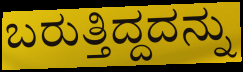
ಬರುತ್ತಿದ್ದದನ್ನು